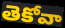
తెకోవా